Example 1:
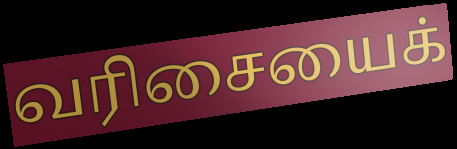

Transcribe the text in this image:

வரிசையைக்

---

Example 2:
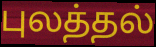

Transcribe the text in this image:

புலத்தல்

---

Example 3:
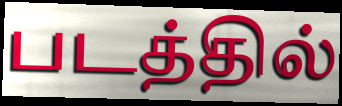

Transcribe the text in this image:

படத்தில்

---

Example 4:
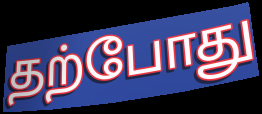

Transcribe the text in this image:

தற்போது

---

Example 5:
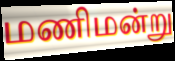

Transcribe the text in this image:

மணிமன்று